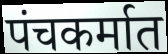
पंचकर्मात